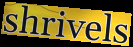
shrivels